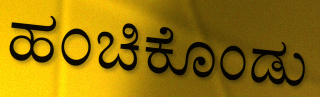
ಹಂಚಿಕೊಂಡು